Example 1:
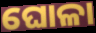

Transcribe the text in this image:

ଘୋଳା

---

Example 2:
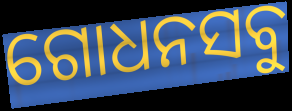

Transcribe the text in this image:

ଗୋଧନସବୁ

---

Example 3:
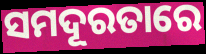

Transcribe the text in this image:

ସମଦୂରତାରେ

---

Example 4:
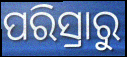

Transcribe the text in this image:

ପରିସ୍ରାରୁ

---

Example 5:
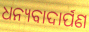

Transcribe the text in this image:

ଧନ୍ୟବାଦାର୍ପଣ